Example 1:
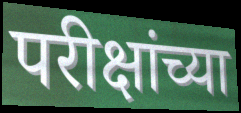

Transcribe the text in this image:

परीक्षांच्या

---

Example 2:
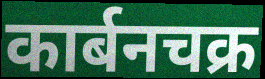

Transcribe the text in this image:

कार्बनचक्र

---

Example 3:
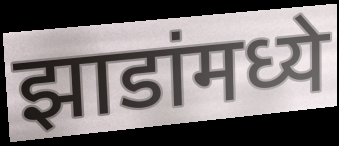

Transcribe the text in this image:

झाडांमध्ये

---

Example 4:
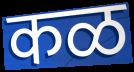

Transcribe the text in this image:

कळ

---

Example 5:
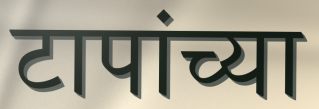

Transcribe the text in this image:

टापांच्या